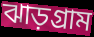
ঝাড়গ্রাম